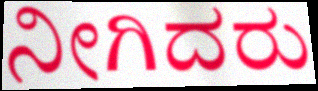
ನೀಗಿದರು